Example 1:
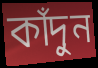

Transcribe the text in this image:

কাঁদুন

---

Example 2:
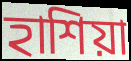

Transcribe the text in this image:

হাশিয়া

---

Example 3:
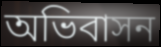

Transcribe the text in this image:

অভিবাসন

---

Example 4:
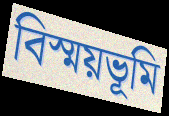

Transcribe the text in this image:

বিস্ময়ভূমি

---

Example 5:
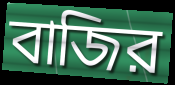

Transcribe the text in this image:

বাজির